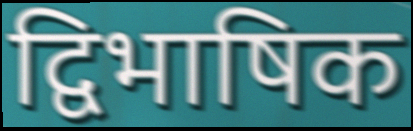
द्विभाषिक